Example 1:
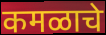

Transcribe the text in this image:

कमळाचे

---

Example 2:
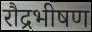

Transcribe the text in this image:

रौद्रभीषण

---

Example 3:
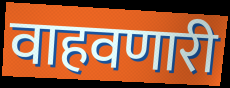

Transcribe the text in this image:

वाहवणारी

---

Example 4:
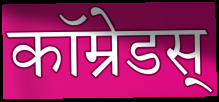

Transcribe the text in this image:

कॉम्रेडस्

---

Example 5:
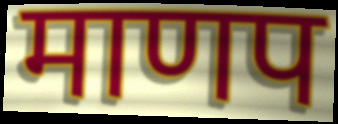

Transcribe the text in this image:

माणप